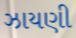
ઝાયણી